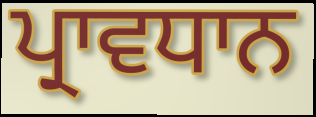
ਪ੍ਰਾਵਧਾਨ